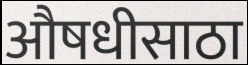
औषधीसाठा